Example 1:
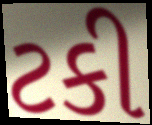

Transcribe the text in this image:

ટકી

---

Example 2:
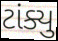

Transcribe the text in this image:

ટાંક્યુ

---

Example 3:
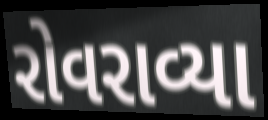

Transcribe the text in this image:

રોવરાવ્યા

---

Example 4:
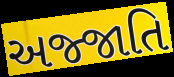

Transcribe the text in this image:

અજ્જાતિ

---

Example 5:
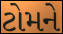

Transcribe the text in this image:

ટોમને